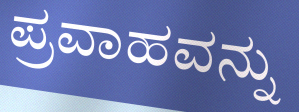
ಪ್ರವಾಹವನ್ನು